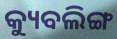
କ୍ୟୁବଲିଙ୍ଗ